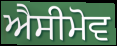
ਐਸੀਮੋਵ